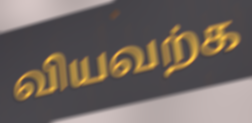
வியவற்க